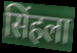
सिंहला